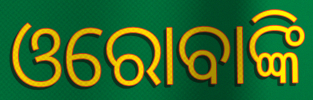
ଓରୋବାଙ୍କି